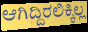
ಆಗಿದ್ದಿರಲಿಕ್ಕಿಲ್ಲ